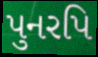
પુનરપિ